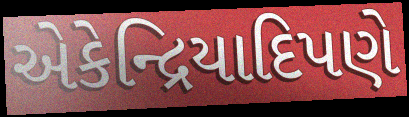
એકેન્દ્રિયાદિપણે